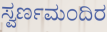
ಸ್ವರ್ಣಮಂದಿರ